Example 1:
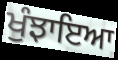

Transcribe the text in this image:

ਖੁੰਝਾਇਆ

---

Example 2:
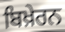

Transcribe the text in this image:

ਬਿਖ਼ੇਰਨ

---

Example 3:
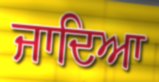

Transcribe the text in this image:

ਜਾਦਿਆ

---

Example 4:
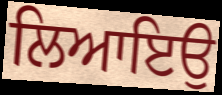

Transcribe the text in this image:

ਲਿਆਇਉ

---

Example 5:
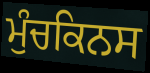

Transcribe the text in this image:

ਮੁੰਚਕਿਨਸ